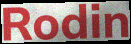
Rodin